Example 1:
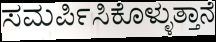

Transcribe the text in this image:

ಸಮರ್ಪಿಸಿಕೊಳ್ಳುತ್ತಾನೆ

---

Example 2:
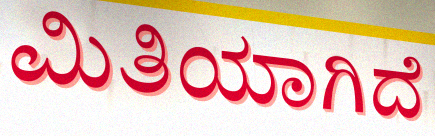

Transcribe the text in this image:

ಮಿತಿಯಾಗಿದೆ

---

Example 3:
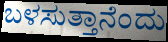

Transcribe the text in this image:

ಬಳಸುತ್ತಾನೆಂದು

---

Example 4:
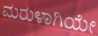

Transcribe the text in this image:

ಮರುಳಾಗಿಯೇ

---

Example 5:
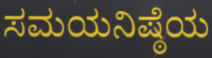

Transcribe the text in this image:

ಸಮಯನಿಷ್ಠೆಯ